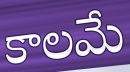
కాలమే